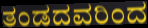
ತಂಡದವರಿಂದ